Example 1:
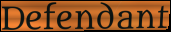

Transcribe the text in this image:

Defendant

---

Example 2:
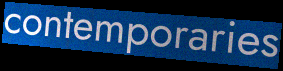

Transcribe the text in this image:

contemporaries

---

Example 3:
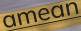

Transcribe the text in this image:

amean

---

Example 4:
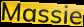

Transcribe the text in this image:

Massie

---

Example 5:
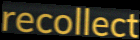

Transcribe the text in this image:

recollect